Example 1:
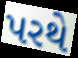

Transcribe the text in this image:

પરથે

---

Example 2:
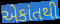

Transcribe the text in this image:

એકાંતથી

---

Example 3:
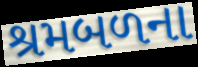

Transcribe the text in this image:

શ્રમબળના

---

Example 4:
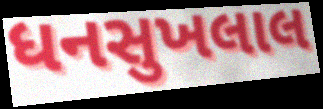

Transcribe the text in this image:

ધનસુખલાલ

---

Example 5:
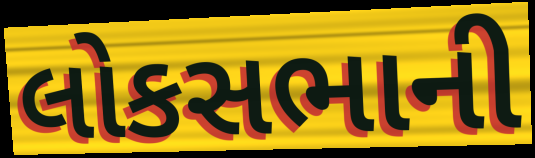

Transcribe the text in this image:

લોકસભાની